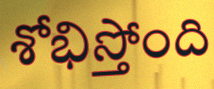
శోభిస్తోంది